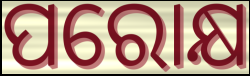
ପରୋକ୍ଷ